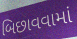
બિછાવવામાં